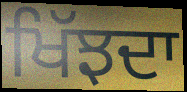
ਖਿੱਝਦਾ